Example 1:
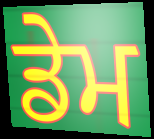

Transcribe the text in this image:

ਡੇਮ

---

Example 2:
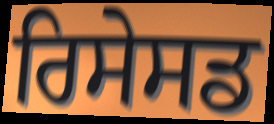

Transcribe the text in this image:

ਰਿਸੇਸਡ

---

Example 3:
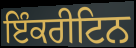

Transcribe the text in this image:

ਇੰਕਰੀਟਿਨ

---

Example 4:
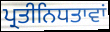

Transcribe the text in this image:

ਪ੍ਰਤੀਨਿਧਤਾਵਾਂ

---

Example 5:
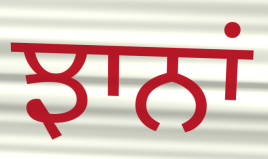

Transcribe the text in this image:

ਝਾਨਾਂ